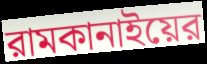
রামকানাইয়ের